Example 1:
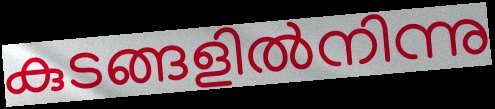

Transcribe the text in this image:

കുടങ്ങളിൽനിന്നു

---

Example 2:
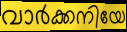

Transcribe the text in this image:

വാർക്കനിയേ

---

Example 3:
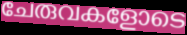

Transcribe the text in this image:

ചേരുവകളോടെ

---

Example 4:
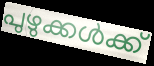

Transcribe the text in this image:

പുഴുക്കൾക്ക്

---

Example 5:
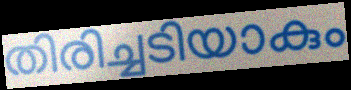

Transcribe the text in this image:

തിരിച്ചടിയാകും